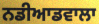
ਨਡੀਆਡਵਾਲਾ